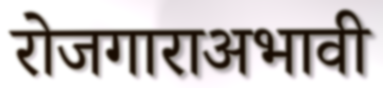
रोजगाराअभावी